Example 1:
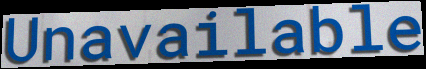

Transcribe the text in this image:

Unavailable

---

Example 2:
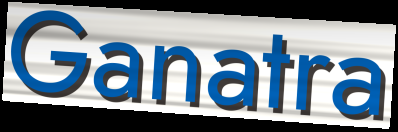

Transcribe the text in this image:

Ganatra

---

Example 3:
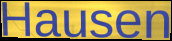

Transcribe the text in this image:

Hausen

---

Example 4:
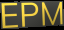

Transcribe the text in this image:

EPM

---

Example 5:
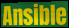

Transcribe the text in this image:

Ansible